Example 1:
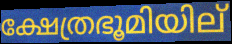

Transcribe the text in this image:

ക്ഷേത്രഭൂമിയില്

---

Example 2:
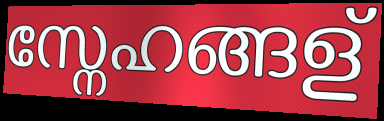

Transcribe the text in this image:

സ്നേഹങ്ങള്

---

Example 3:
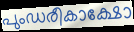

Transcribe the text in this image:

പുംഡരീകാക്ഷോ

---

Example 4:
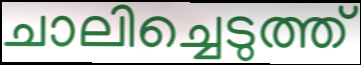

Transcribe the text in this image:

ചാലിച്ചെടുത്ത്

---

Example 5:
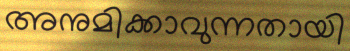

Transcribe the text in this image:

അനുമിക്കാവുന്നതായി